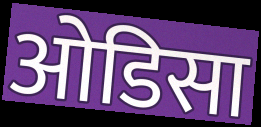
ओडिसा